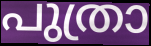
പുത്രാ